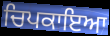
ਚਿਪਕਾਇਆ